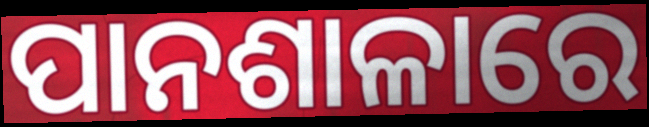
ପାନଶାଳାରେ